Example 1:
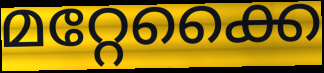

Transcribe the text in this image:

മറ്റേക്കൈ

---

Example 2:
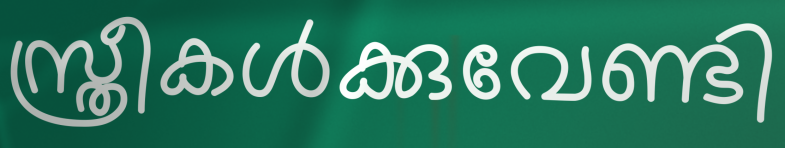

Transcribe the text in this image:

സ്ത്രീകൾക്കുവേണ്ടി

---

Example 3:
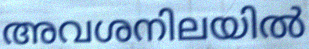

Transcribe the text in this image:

അവശനിലയിൽ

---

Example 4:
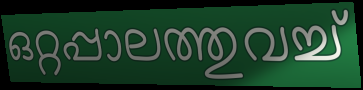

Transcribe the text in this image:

ഒറ്റപ്പാലത്തുവച്ച്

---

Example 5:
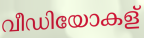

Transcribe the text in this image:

വീഡിയോകള്